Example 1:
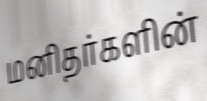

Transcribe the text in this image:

மனிதர்களின்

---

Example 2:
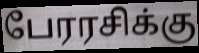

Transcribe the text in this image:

பேரரசிக்கு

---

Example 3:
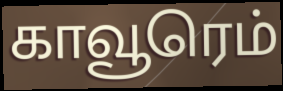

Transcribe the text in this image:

காவூரெம்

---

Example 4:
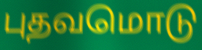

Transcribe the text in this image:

புதவமொடு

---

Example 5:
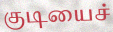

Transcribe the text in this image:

குடியைச்